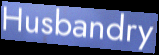
Husbandry